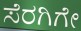
ಸೆರಗಿಗೇ